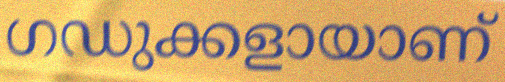
ഗഡുക്കളായാണ്